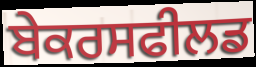
ਬੇਕਰਸਫੀਲਡ